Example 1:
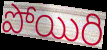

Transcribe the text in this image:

పోయిరి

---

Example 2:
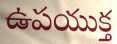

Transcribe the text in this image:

ఉపయుక్త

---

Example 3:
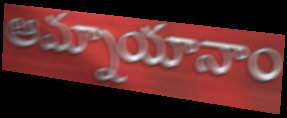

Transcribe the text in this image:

ఆమ్నాయానాం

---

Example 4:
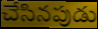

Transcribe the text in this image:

చేసినపుడు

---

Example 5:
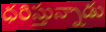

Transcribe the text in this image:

ధరిస్తున్నాడు